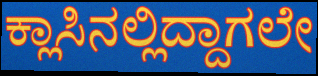
ಕ್ಲಾಸಿನಲ್ಲಿದ್ದಾಗಲೇ